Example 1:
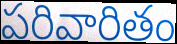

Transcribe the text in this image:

పరివారితం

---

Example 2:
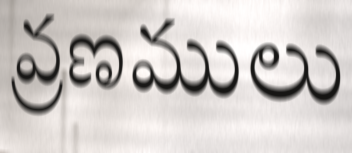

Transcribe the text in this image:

వ్రణములు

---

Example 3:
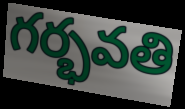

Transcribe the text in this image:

గర్భవతి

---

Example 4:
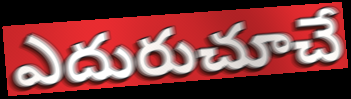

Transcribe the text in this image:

ఎదురుచూచే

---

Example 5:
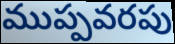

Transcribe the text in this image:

ముప్పవరపు